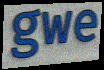
gwe